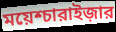
ময়েশ্চারাইজ়ার